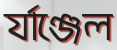
র্যাঞ্জেল